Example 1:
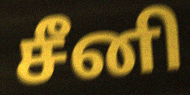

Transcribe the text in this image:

சீனி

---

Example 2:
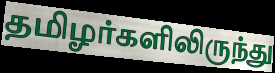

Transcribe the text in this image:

தமிழர்களிலிருந்து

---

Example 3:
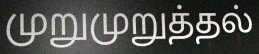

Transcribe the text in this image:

முறுமுறுத்தல்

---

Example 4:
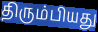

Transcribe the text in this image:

திரும்பியது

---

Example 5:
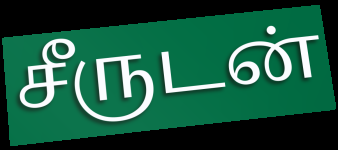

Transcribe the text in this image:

சீருடன்